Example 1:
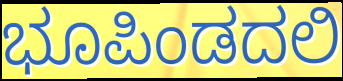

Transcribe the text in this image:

ಭೂಪಿಂಡದಲಿ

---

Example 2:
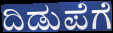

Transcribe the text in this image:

ದಿಡುಪೆಗೆ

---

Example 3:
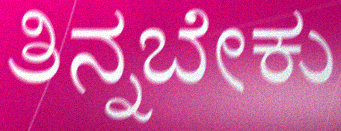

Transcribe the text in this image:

ತಿನ್ನಬೇಕು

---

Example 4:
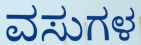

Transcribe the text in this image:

ವಸುಗಳ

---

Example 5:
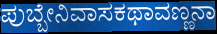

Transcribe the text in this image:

ಪುಬ್ಬೇನಿವಾಸಕಥಾವಣ್ಣನಾ